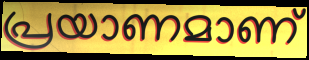
പ്രയാണമാണ്